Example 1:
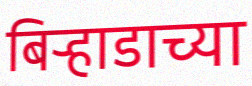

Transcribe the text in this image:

बिऱ्हाडाच्या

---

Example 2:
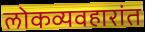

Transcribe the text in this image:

लोकव्यवहारांत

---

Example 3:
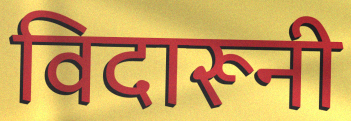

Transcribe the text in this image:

विदारूनी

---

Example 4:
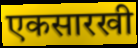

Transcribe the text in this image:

एकसारखी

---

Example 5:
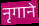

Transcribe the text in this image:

नृगाने